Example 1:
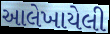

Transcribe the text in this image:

આલેખાયેલી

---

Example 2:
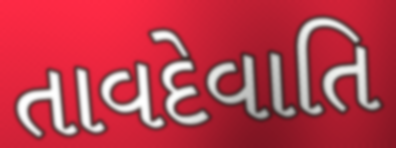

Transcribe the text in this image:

તાવદેવાતિ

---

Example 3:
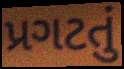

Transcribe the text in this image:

પ્રગટતું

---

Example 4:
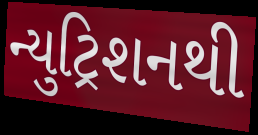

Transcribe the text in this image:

ન્યુટ્રિશનથી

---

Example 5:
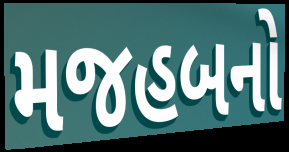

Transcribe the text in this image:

મજહબનો